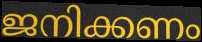
ജനിക്കണം